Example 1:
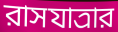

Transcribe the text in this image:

রাসযাত্রার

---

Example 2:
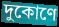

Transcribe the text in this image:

দুকোণে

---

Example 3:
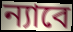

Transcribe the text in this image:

ন্যাবে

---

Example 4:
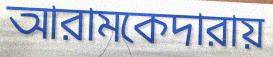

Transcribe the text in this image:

আরামকেদারায়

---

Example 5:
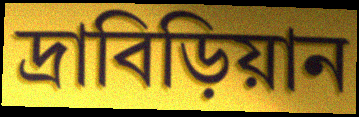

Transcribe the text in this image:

দ্রাবিড়িয়ান